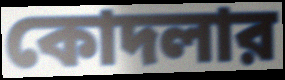
কোদলার